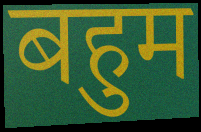
बहुम